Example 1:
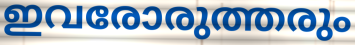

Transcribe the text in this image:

ഇവരോരുത്തരും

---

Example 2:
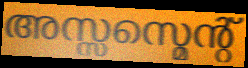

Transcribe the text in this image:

അസ്സസ്മെന്റ്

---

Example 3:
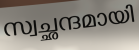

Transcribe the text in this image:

സ്വച്ഛന്ദമായി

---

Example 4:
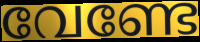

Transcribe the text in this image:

വേണ്ടേ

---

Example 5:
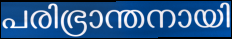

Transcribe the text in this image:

പരിഭ്രാന്തനായി